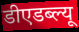
डीएडब्ल्यू